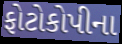
ફોટોકોપીના